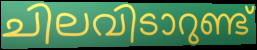
ചിലവിടാറുണ്ട്